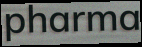
pharma